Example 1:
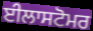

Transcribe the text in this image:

ਈਲਾਸਟੋਮਰ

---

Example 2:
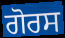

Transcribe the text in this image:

ਗੋਰਸ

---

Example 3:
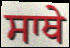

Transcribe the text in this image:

ਸਾਥੇ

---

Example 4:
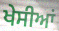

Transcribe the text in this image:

ਖੇਸੀਆਂ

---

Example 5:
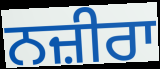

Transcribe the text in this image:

ਨਜ਼ੀਰਾ